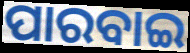
ପାରବାଇ